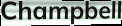
Champbell